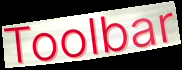
Toolbar